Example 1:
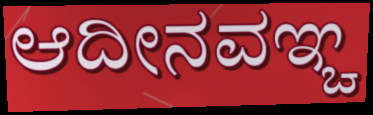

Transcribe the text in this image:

ಆದೀನವಞ್ಚ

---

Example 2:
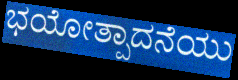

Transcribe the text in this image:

ಭಯೋತ್ಪಾದನೆಯು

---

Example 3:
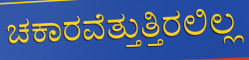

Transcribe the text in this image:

ಚಕಾರವೆತ್ತುತ್ತಿರಲಿಲ್ಲ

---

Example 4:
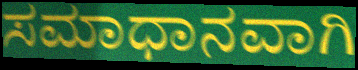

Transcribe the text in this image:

ಸಮಾಧಾನವಾಗಿ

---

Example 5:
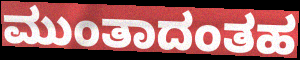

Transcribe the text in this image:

ಮುಂತಾದಂತಹ